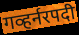
गव्हर्नरपदी